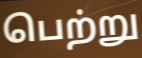
பெற்று